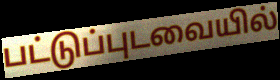
பட்டுப்புடவையில்